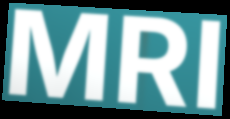
MRI